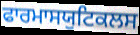
ਫਾਰਮਾਸਯੁਟਿਕਲਸ